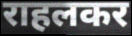
राहलकर